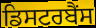
ਡਿਸਟਰਬੈਂਸ